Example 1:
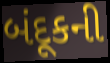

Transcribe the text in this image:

બંદૂકની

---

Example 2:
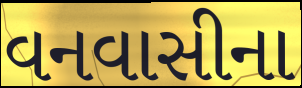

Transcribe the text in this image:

વનવાસીના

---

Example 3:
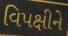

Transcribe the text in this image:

વિપક્ષીને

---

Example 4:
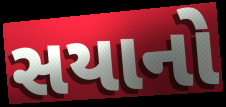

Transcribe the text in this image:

સયાનો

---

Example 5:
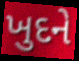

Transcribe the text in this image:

ખુદને